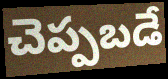
చెప్పబడే